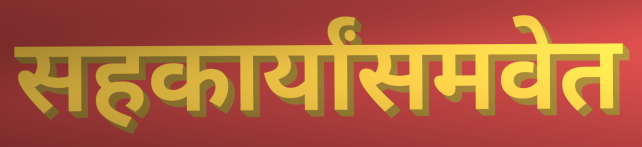
सहकार्यांसमवेत